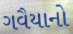
ગવૈયાનો